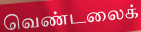
வெண்டலைக்